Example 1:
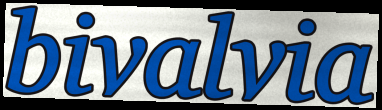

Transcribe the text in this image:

bivalvia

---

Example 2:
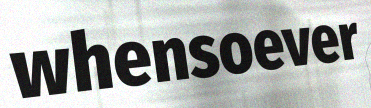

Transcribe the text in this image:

whensoever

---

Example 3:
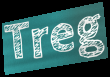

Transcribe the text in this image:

Treg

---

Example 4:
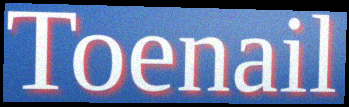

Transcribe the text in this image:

Toenail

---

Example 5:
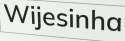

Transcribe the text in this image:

Wijesinha